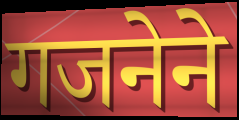
गजनेने